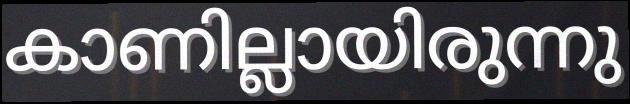
കാണില്ലായിരുന്നു